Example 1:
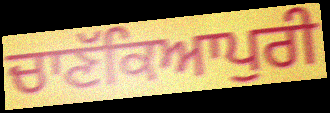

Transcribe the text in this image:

ਚਾਣੱਕਿਆਪੁਰੀ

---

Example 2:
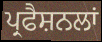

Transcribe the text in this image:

ਪ੍ਰਫੈਸ਼ਨਲਾਂ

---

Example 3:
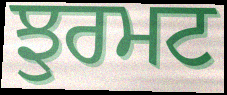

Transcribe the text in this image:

ਝੁਰਮਟ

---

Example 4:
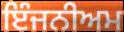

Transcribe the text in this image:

ਇੰਜਨੀਅਮ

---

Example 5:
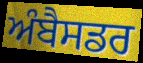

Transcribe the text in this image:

ਅੰਬੈਸਡਰ